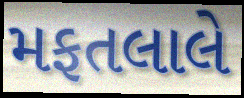
મફતલાલે